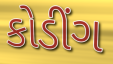
કોડીંગ